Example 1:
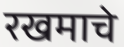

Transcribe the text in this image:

रखमाचे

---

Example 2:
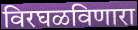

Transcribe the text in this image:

विरघळविणारा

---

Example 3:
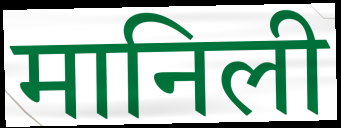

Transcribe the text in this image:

मानिली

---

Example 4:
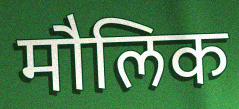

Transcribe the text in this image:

मौलिक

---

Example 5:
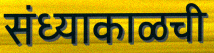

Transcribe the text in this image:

संध्याकाळची